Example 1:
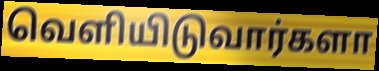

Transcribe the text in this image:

வெளியிடுவார்களா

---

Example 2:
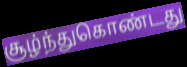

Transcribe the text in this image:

சூழ்ந்துகொண்டது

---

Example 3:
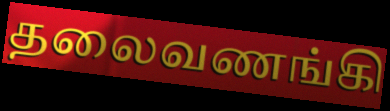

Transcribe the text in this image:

தலைவணங்கி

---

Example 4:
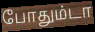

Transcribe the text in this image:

போதும்டா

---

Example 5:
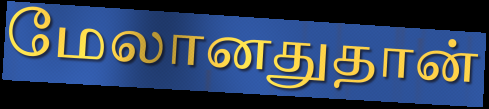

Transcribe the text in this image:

மேலானதுதான்